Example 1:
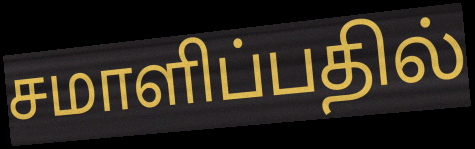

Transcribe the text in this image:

சமாளிப்பதில்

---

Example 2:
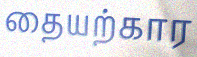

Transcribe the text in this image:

தையற்கார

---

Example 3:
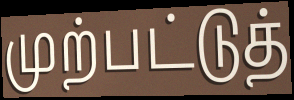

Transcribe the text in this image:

முற்பட்டுத்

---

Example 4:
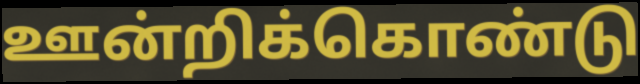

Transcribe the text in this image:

ஊன்றிக்கொண்டு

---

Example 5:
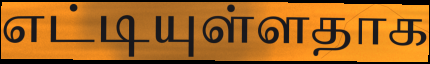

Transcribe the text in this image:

எட்டியுள்ளதாக